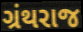
ગ્રંથરાજ